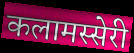
कलामस्सेरी